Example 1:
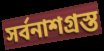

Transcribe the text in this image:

সর্বনাশগ্রস্ত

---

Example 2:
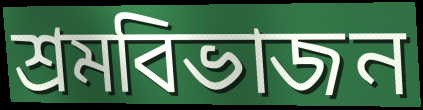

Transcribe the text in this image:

শ্রমবিভাজন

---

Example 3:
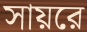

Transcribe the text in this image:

সায়রে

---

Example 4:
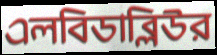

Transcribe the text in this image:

এলবিডাব্লিউর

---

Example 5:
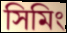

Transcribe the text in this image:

সিমিং